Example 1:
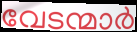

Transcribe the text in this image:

വേടന്മാർ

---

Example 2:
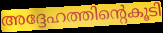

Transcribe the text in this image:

അദ്ദേഹത്തിന്റെകൂടി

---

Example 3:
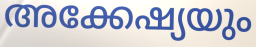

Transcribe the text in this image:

അക്കേഷ്യയും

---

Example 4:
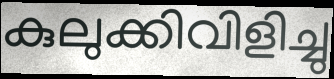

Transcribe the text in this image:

കുലുക്കിവിളിച്ചു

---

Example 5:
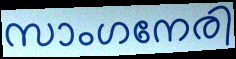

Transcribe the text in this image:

സാംഗനേരി